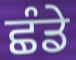
ਛੰਡੇ